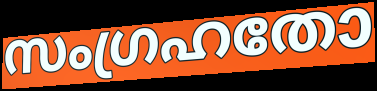
സംഗ്രഹതോ